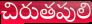
చిరుతపులి